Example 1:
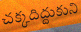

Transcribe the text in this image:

చక్కదిద్దుకుని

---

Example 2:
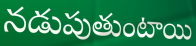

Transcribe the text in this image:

నడుపుతుంటాయి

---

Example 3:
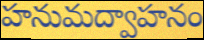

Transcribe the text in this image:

హనుమద్వాహనం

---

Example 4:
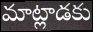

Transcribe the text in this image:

మాట్లాడకు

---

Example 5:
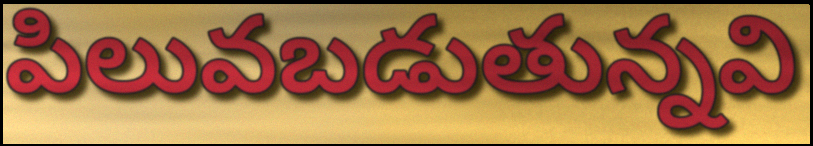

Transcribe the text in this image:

పిలువబడుతున్నవి